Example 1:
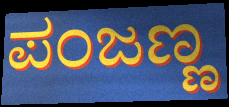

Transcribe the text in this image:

ಪಂಜಣ್ಣ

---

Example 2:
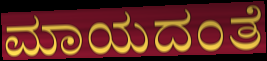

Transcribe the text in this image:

ಮಾಯದಂತೆ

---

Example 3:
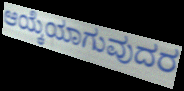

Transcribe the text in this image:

ಆಯ್ಕೆಯಾಗುವುದರ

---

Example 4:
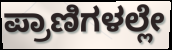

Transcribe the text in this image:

ಪ್ರಾಣಿಗಳಲ್ಲೇ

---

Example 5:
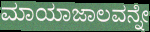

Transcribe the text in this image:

ಮಾಯಾಜಾಲವನ್ನೇ